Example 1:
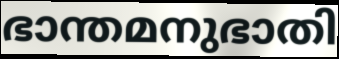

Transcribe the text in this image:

ഭാന്തമനുഭാതി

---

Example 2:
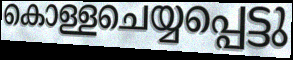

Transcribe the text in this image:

കൊള്ളചെയ്യപ്പെട്ടു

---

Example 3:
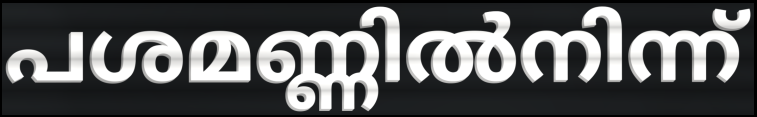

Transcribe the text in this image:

പശമണ്ണിൽനിന്ന്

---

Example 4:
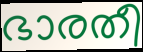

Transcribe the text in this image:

ഭാരതീ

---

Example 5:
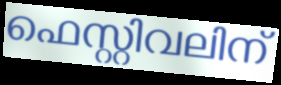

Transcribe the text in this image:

ഫെസ്റ്റിവലിന്